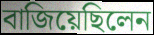
বাজিয়েছিলেন